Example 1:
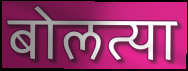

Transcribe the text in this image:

बोलत्या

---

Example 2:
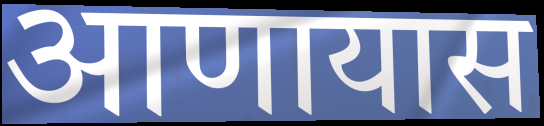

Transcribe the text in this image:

आणायास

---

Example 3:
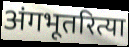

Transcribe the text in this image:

अंगभूतरित्या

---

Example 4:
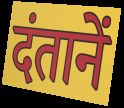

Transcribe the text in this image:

दंतानें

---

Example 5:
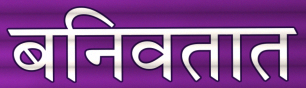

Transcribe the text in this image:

बनिवतात